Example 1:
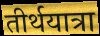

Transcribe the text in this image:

तीर्थयात्रा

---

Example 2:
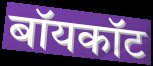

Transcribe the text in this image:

बॉयकॉट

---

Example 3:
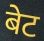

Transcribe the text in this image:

बेट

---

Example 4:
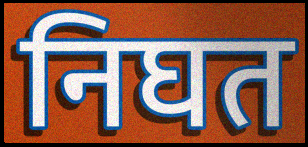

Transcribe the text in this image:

निघत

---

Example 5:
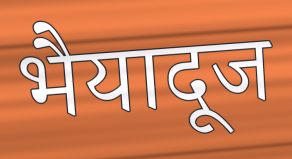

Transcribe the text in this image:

भैयादूज